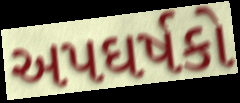
અપઘર્ષકો